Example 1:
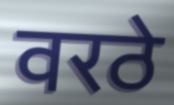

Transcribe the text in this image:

वरठे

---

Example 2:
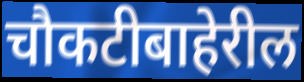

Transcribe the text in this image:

चौकटीबाहेरील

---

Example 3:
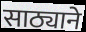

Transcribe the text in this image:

साठ्याने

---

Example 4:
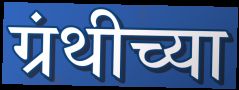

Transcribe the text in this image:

ग्रंथीच्या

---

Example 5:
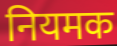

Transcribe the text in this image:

नियमक